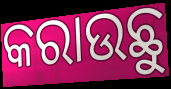
କରାଉଛୁ